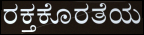
ರಕ್ತಕೊರತೆಯ